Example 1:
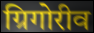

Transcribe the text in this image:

ग्रिगोरीव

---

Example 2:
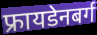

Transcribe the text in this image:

फ्रायडेनबर्ग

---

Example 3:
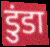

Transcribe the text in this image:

डुंडा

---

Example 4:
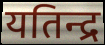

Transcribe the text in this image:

यतिन्द्र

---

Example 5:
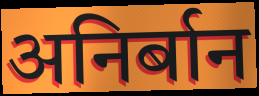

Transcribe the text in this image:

अनिर्बान